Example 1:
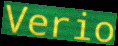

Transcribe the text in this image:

Verio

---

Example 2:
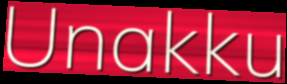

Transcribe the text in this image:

Unakku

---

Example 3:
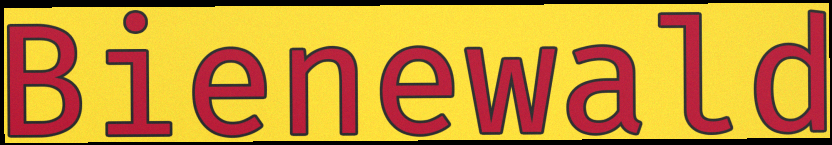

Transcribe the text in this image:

Bienewald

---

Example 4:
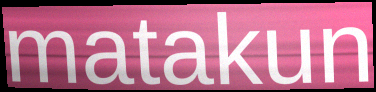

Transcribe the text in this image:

matakun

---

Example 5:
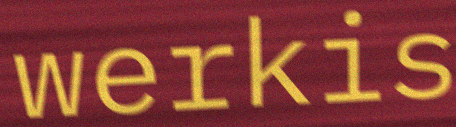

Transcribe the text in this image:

werkis